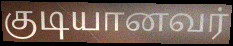
குடியானவர்